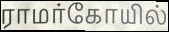
ராமர்கோயில்